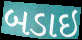
બડાઇ